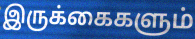
இருக்கைகளும்